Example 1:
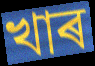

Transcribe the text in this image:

খাৰ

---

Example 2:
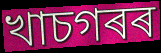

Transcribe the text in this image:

খাচগৰৰ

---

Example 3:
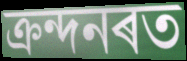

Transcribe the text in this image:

ক্ৰন্দনৰত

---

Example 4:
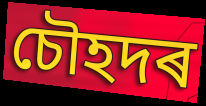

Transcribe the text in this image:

চৌহদৰ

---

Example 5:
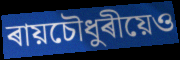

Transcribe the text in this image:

ৰায়চৌধুৰীয়েও